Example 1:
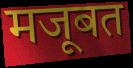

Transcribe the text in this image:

मजूबत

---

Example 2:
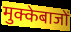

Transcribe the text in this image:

मुक्केबाजों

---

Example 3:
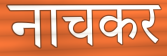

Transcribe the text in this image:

नाचकर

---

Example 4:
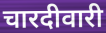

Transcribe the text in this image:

चारदीवारी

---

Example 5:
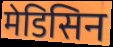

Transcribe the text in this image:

मेडिसिन